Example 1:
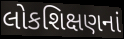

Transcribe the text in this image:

લોકશિક્ષણનાં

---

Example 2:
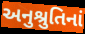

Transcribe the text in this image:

અનુશ્રુતિનાં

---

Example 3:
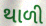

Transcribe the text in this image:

થાળી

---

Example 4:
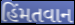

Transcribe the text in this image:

હિંમતવાન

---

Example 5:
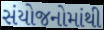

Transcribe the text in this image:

સંયોજનોમાંથી